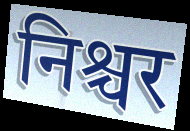
निश्चर